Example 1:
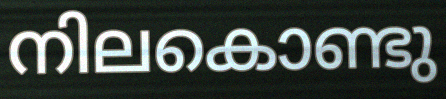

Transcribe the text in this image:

നിലകൊണ്ടു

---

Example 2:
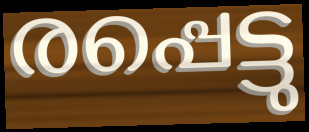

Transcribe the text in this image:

രപ്പെട്ടു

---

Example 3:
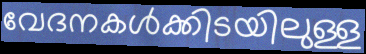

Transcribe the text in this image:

വേദനകൾക്കിടയിലുള്ള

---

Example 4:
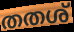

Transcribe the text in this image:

തതശ്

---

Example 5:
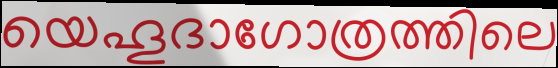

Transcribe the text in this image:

യെഹൂദാഗോത്രത്തിലെ